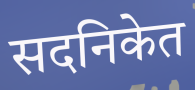
सदनिकेत